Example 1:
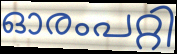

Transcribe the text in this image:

ഓരംപറ്റി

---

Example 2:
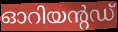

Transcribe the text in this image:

ഓറിയന്റഡ്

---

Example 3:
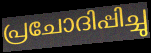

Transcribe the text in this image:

പ്രചോദിപ്പിച്ചു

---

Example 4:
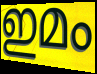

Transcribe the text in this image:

ഇമം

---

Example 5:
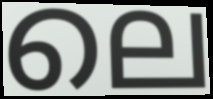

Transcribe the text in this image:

ലെ